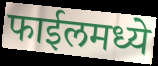
फाईलमध्ये